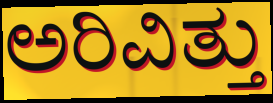
ಅರಿವಿತ್ತು